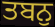
ਤਬਨੁ